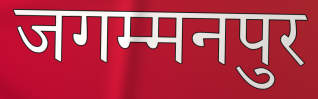
जगम्मनपुर